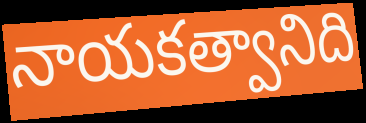
నాయకత్వానిది